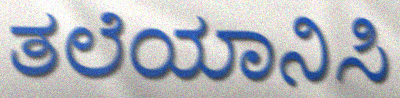
ತಲೆಯಾನಿಸಿ